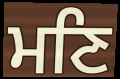
ਮਣਿ